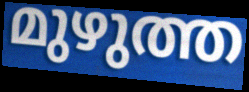
മുഴുത്ത